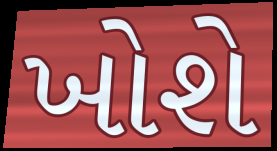
ખોશે